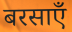
बरसाएँ